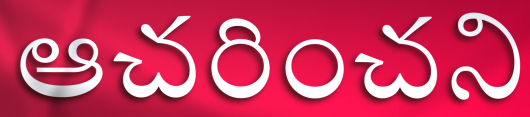
ఆచరించని